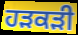
ਹੜਕੜੀ